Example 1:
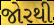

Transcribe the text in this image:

જોરથી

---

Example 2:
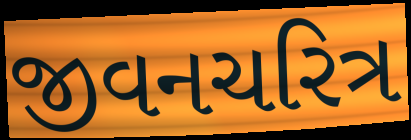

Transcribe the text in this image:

જીવનચરિત્ર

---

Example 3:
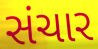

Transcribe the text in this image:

સંચાર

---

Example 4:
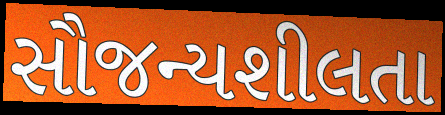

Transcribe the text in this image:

સૌજન્યશીલતા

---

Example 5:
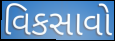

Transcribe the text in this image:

વિકસાવો